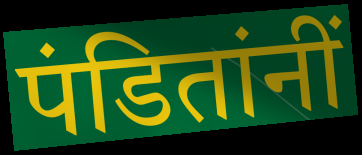
पंडितांनीं